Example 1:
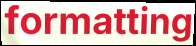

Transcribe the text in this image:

formatting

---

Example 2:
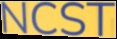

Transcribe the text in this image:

NCST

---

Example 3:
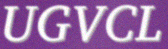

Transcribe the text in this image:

UGVCL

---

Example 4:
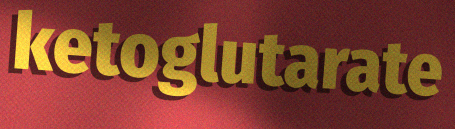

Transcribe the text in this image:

ketoglutarate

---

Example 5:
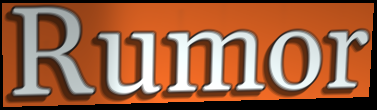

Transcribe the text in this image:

Rumor